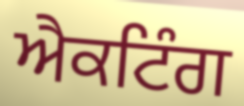
ਐਕਟਿੰਗ